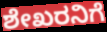
ಶೇಖರನಿಗೆ